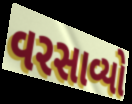
વરસાવ્યો